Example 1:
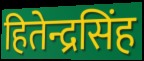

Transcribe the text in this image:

हितेन्द्रसिंह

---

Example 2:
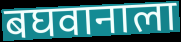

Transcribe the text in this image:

बघवानाला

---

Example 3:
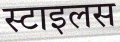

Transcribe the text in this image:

स्टाइलस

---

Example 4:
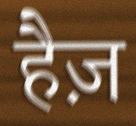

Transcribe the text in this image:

हैज़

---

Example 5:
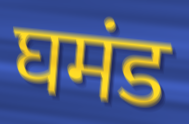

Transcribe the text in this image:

घमंड